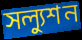
সল্যুশন